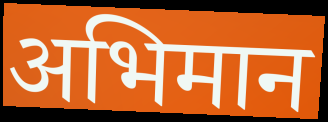
अभिमान